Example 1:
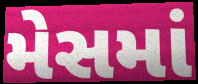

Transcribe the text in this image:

મેસમાં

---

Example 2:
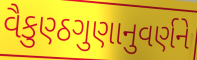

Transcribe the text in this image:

વૈકુણ્ઠગુણાનુવર્ણને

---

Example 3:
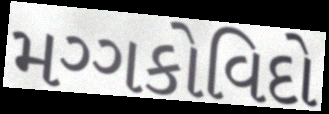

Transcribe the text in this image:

મગ્ગકોવિદો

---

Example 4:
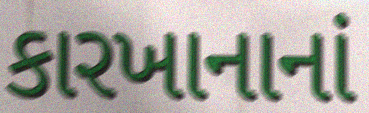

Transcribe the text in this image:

કારખાનાનાં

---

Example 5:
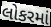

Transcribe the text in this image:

લોકરમાં